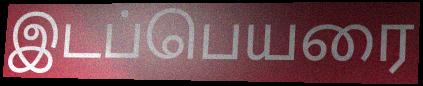
இடப்பெயரை